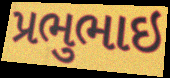
પ્રભુભાઇ